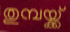
തുമ്പയ്ക്ക്